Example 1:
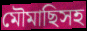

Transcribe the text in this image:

মৌমাছিসহ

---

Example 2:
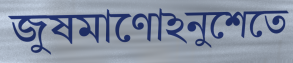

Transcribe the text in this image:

জুষমাণোঽনুশেতে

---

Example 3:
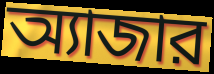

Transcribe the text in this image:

অ্যাজার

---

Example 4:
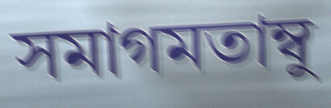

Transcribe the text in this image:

সমাগমতাম্বু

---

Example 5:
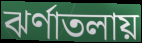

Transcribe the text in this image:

ঝর্ণাতলায়